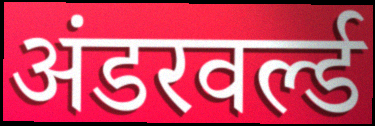
अंडरवर्ल्ड